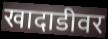
खादाडीवर